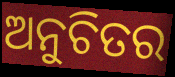
ଅନୁଚିତର